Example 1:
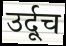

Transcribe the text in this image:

उर्दूच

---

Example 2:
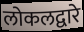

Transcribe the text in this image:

लोकलद्वारे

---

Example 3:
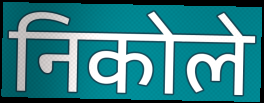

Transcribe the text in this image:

निकोले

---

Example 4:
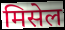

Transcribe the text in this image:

मिसेल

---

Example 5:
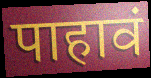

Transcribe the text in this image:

पाहावं